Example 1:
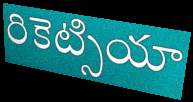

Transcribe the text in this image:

రికెట్సియా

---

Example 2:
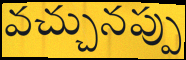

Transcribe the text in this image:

వచ్చునప్పు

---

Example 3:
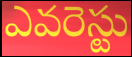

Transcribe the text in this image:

ఎవరెస్టు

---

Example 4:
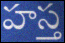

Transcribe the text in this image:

హస్త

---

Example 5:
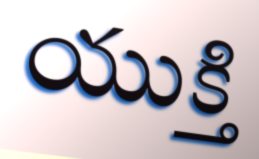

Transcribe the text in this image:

యుక్తి